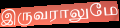
இருவராலுமே